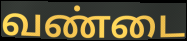
வண்டை